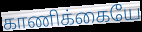
காணிக்கையே